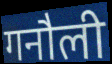
गनौली